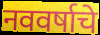
नववर्षाचे